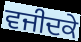
ਵਜੀਦਕੇ